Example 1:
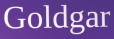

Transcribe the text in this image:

Goldgar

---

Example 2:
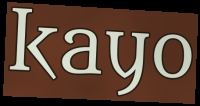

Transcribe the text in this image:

kayo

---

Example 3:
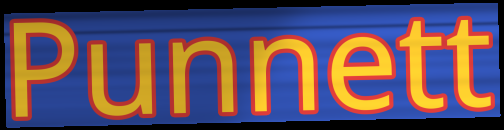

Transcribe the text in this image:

Punnett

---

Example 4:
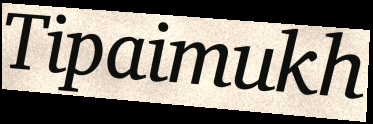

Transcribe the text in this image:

Tipaimukh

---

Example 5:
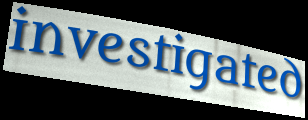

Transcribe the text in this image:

investigated